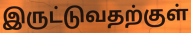
இருட்டுவதற்குள்